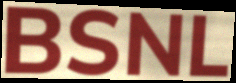
BSNL